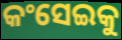
କଂସେଇକୁ